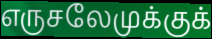
எருசலேமுக்குக்